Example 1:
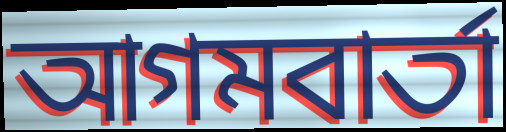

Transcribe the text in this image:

আগমবার্তা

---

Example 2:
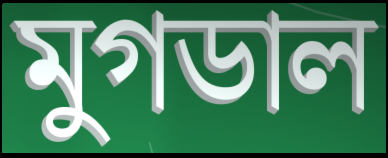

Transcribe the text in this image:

মুগডাল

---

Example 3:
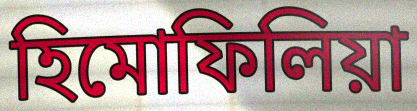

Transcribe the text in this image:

হিমোফিলিয়া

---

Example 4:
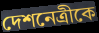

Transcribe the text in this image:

দেশনেত্রীকে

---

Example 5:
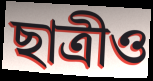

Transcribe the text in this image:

ছাত্রীও